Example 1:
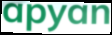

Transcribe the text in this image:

apyan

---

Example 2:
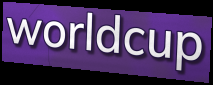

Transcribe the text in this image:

worldcup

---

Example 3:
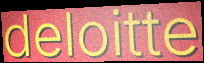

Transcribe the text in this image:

deloitte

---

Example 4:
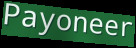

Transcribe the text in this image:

Payoneer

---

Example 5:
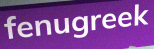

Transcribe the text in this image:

fenugreek